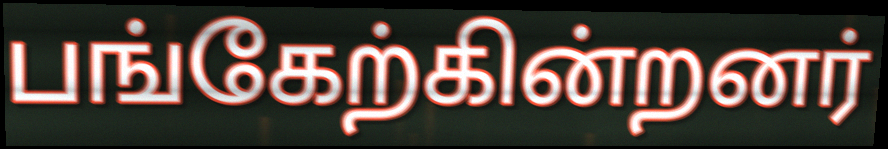
பங்கேற்கின்றனர்